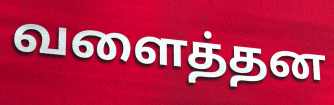
வளைத்தன